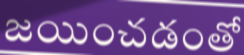
జయించడంతో